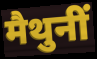
मैथुनीं